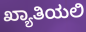
ಖ್ಯಾತಿಯಲಿ